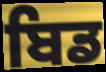
ਬਿਡ